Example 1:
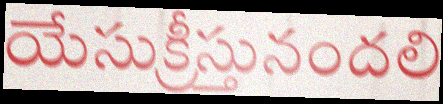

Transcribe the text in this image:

యేసుక్రీస్తునందలి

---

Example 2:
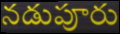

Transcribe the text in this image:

నడుపూరు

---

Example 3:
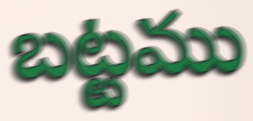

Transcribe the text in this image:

బట్టము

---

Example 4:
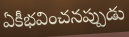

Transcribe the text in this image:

ఏకీభవించనప్పుడు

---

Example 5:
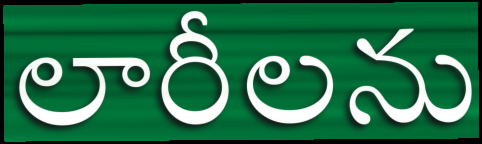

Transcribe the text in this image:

లారీలను